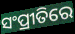
ସଂପ୍ରୀତିରେ